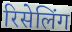
रिसेलिंग